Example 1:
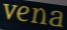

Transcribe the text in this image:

vena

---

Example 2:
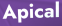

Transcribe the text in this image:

Apical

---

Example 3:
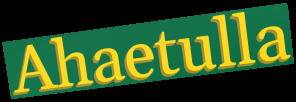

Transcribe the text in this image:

Ahaetulla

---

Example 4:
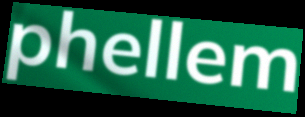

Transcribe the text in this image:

phellem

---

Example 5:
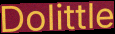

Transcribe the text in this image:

Dolittle